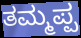
ತಮ್ಮಪ್ಪ